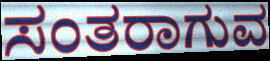
ಸಂತರಾಗುವ